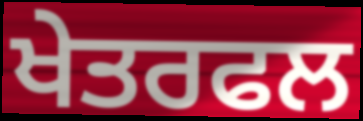
ਖੇਤਰਫਲ